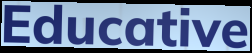
Educative